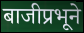
बाजीप्रभूने